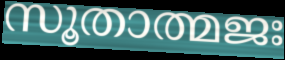
സൂതാത്മജഃ